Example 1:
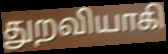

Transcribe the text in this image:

துறவியாகி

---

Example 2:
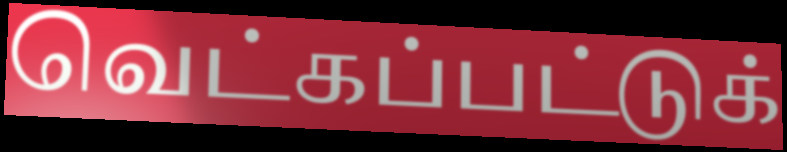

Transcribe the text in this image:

வெட்கப்பட்டுக்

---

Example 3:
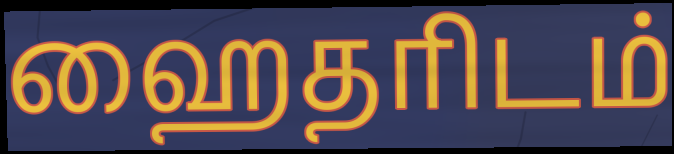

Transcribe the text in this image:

ஹைதரிடம்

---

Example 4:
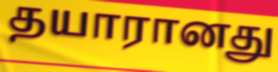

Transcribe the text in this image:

தயாரானது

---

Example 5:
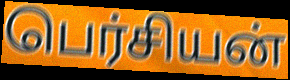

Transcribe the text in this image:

பெர்சியன்